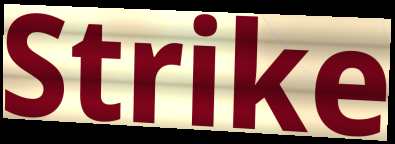
Strike